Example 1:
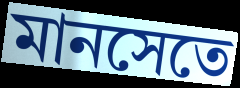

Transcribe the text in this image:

মানসেতে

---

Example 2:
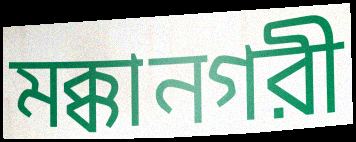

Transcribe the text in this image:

মক্কানগরী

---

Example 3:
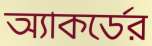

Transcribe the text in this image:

অ্যাকর্ডের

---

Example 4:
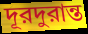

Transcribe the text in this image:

দূরদুরান্ত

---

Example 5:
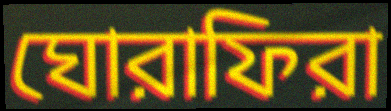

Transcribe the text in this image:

ঘোরাফিরা